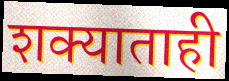
शक्याताही